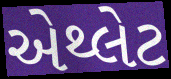
એથ્લેટ